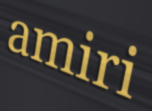
amiri